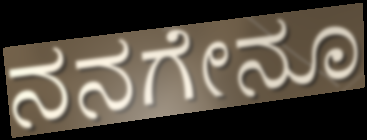
ನನಗೇನೂ